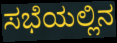
ಸಭೆಯಲ್ಲಿನ